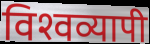
विश्वव्यापी